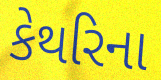
કેથરિના